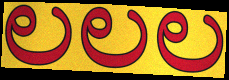
ಲಲಲ